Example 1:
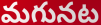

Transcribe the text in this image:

మగునట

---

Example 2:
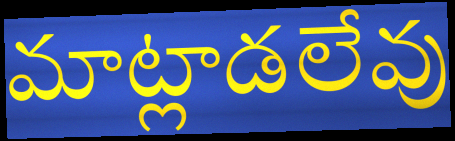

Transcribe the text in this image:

మాట్లాడలేవు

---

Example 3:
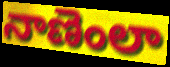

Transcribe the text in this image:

నాణెంలా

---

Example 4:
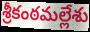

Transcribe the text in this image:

శ్రీకంఠమల్లేశు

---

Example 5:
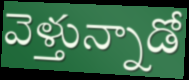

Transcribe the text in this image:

వెళ్తున్నాడో